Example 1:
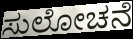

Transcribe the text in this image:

ಸುಲೋಚನೆ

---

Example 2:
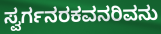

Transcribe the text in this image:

ಸ್ವರ್ಗನರಕವನರಿವನು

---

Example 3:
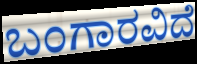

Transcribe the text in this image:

ಬಂಗಾರವಿದೆ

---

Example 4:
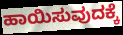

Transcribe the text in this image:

ಹಾಯಿಸುವುದಕ್ಕೆ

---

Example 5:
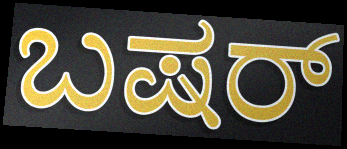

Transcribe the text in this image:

ಬಷರ್